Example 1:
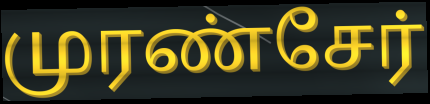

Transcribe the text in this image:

முரண்சேர்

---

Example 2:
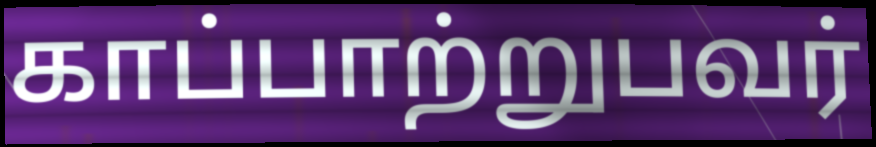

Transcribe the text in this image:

காப்பாற்றுபவர்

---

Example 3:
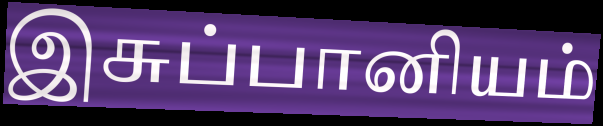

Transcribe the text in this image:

இசுப்பானியம்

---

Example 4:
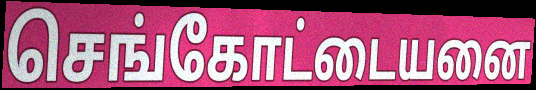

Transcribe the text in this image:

செங்கோட்டையனை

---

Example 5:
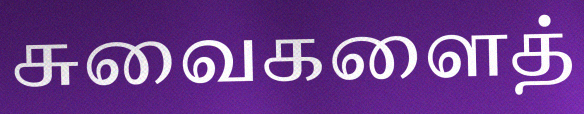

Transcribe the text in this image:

சுவைகளைத்